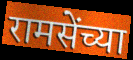
रामसेंच्या